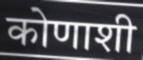
कोणाशी